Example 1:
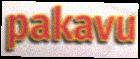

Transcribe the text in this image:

pakavu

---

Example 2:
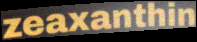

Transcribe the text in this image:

zeaxanthin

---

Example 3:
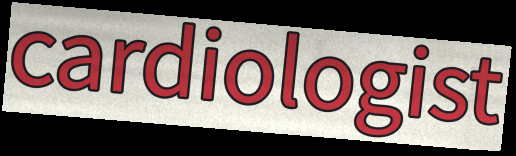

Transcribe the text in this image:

cardiologist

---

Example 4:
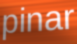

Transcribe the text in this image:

pinar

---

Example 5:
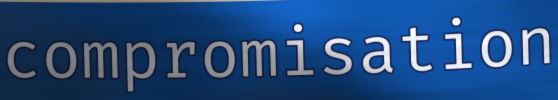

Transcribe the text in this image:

compromisation